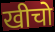
खीचो